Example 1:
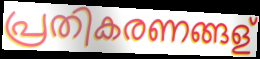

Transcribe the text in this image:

പ്രതികരണങ്ങള്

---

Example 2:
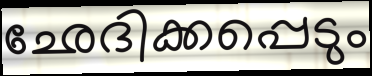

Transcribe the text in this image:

ഛേദിക്കപ്പെടും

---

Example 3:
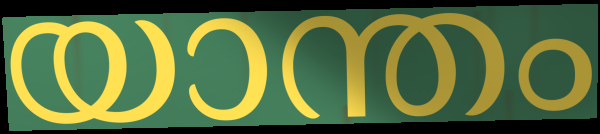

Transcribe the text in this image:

യാന്തം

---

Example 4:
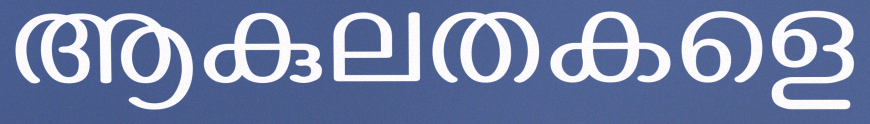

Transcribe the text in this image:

ആകുലതകളെ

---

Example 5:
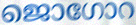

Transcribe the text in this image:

ജൊഗോറ